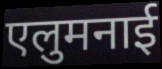
एलुमनाई